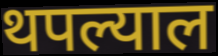
थपल्याल